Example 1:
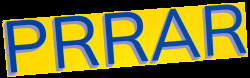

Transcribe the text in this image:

PRRAR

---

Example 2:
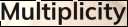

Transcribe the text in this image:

Multiplicity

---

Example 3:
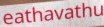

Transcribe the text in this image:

eathavathu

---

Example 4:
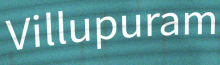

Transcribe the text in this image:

Villupuram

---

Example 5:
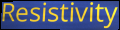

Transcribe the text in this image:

Resistivity